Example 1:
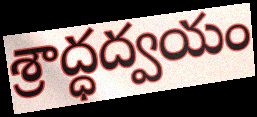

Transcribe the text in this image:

శ్రాద్ధద్వయం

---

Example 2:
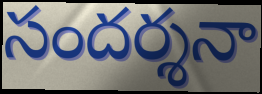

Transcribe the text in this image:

సందర్శనా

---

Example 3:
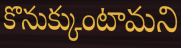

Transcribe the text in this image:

కొనుక్కుంటామని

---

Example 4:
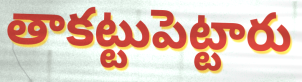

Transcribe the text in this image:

తాకట్టుపెట్టారు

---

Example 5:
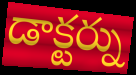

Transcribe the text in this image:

డాక్టర్ను